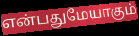
என்பதுமேயாகும்